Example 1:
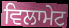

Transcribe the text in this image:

ਵਿਲਾਮੇਟ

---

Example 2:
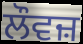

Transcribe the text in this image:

ਲੌਵਜ਼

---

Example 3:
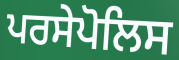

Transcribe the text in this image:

ਪਰਸੇਪੋਲਿਸ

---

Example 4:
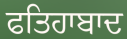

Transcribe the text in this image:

ਫਤਿਹਾਬਾਦ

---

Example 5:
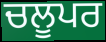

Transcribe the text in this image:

ਚਲੂਪਰ